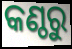
କଣ୍ଠରୁ